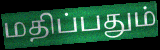
மதிப்பதும்